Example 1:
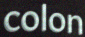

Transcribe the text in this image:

colon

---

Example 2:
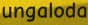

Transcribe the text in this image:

ungaloda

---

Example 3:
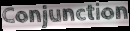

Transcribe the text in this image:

Conjunction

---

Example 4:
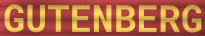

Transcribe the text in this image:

GUTENBERG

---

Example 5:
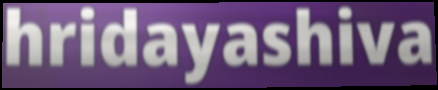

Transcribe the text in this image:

hridayashiva